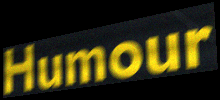
Humour